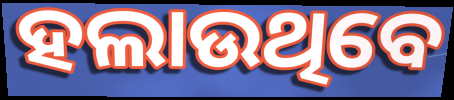
ହଲାଉଥିବେ